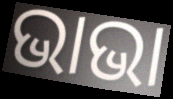
ଭାଭା